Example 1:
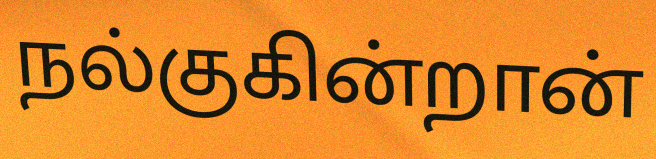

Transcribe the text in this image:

நல்குகின்றான்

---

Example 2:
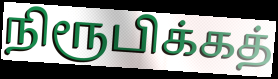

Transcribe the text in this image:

நிரூபிக்கத்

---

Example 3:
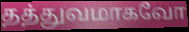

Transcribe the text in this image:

தத்துவமாகவோ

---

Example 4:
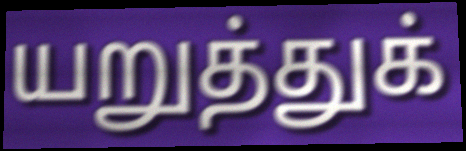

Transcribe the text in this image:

யறுத்துக்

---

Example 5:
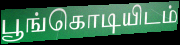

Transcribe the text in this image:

பூங்கொடியிடம்